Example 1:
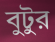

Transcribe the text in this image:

বুটুর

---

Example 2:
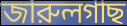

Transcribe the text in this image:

জারুলগাছ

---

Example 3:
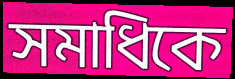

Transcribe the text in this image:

সমাধিকে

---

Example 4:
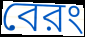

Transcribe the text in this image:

বেরং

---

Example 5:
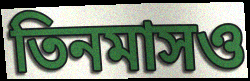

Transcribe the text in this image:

তিনমাসও